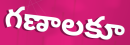
గణాలకూ